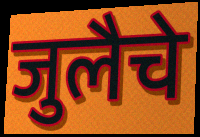
जुलैचे